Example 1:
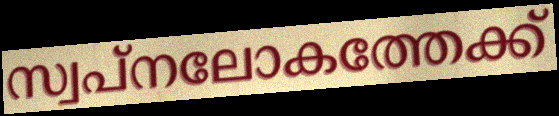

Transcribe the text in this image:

സ്വപ്നലോകത്തേക്ക്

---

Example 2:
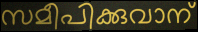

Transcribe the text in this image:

സമീപിക്കുവാന്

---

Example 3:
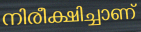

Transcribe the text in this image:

നിരീക്ഷിച്ചാണ്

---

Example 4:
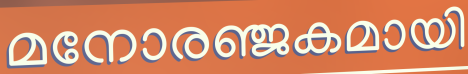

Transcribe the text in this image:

മനോരഞ്ജകമായി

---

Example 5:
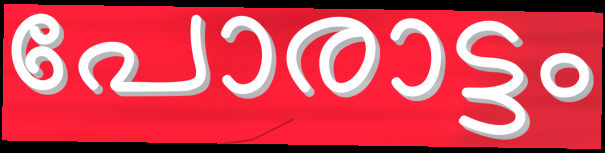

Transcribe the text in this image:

പോരാട്ടം